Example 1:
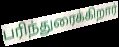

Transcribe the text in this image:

பரிந்துரைக்கிறார்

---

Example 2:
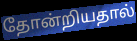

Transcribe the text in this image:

தோன்றியதால்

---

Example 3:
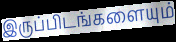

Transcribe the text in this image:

இருப்பிடங்களையும்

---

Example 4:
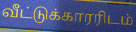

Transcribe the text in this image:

வீட்டுக்காரரிடம்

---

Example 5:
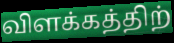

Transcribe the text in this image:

விளக்கத்திற்